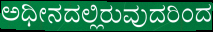
ಅಧೀನದಲ್ಲಿರುವುದರಿಂದ